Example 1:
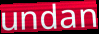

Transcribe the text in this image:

undan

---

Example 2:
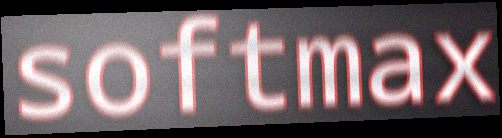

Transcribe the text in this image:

softmax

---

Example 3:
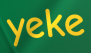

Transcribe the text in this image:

yeke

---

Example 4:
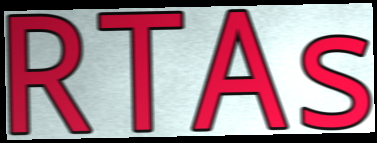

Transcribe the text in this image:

RTAs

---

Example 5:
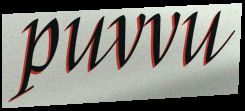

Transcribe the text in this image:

puvvu